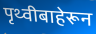
पृथ्वीबाहेरून